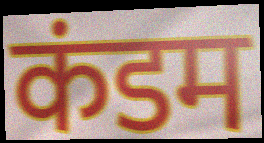
कंडम